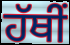
ਹੱਥੀਂ